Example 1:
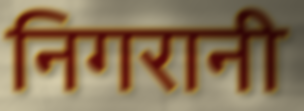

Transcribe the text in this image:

निगरानी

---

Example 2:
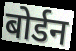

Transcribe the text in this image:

बोर्डन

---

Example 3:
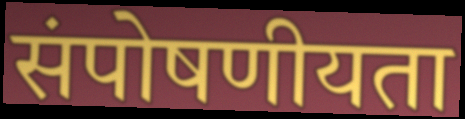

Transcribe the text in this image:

संपोषणीयता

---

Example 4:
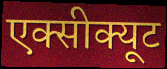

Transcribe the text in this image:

एक्सीक्यूट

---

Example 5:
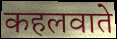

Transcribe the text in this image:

कहलवाते